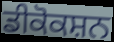
ਡੀਕੋਕਸ਼ਨ